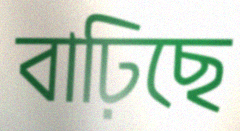
বাঢ়িছে